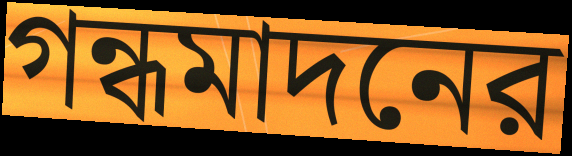
গন্ধমাদনের